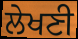
ਲੇਖਣੀ